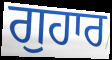
ਗੁਹਾਰ